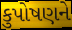
કુપોષણને